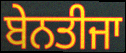
ਬੇਨਤੀਜਾ